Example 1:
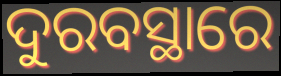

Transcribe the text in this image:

ଦୁରବସ୍ଥାରେ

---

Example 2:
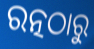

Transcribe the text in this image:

ରତ୍ନଠାରୁ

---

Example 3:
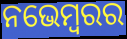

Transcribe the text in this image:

ନଭେମ୍ବରର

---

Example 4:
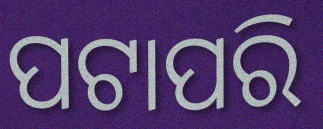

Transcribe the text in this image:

ପଟାପରି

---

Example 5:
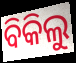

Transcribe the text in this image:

ବିକିଲୁ